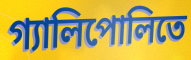
গ্যালিপোলিতে